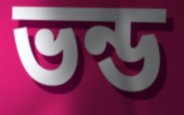
ভন্ড